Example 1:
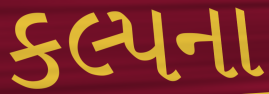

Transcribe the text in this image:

કલ્પના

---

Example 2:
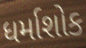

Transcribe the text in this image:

ધર્માશોક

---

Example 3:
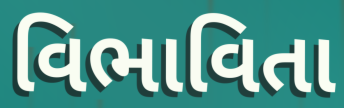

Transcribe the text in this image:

વિભાવિતા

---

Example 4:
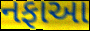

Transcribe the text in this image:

નફાઆ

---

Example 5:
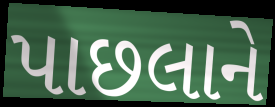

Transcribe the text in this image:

પાછલાને